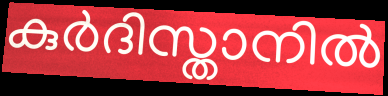
കുർദിസ്താനിൽ